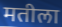
मतीला